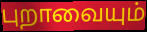
புறாவையும்